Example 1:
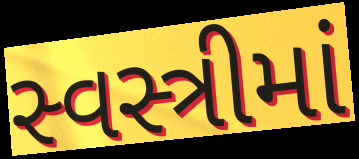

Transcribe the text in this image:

સ્વસ્ત્રીમાં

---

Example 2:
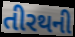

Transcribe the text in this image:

તીરથની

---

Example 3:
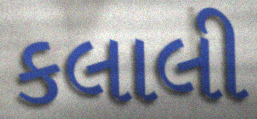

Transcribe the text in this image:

કલાલી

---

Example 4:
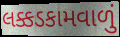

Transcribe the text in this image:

લક્કડકામવાળું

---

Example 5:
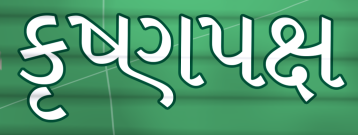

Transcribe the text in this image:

કૃષ્ણપક્ષ